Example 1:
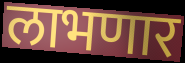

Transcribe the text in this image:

लाभणार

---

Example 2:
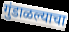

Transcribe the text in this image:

गुंडाळल्याचा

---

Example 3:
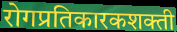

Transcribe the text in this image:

रोगप्रतिकारकशक्ती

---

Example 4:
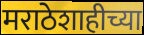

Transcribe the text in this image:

मराठेशाहीच्या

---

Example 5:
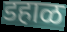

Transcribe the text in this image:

डहाळ